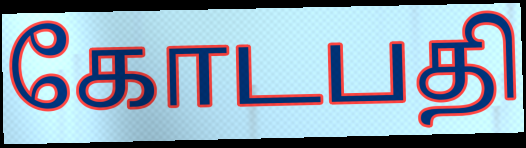
கோடபதி